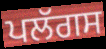
ਪਲੱਗਸ